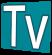
Tv